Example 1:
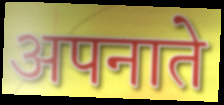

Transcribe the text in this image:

अपनाते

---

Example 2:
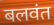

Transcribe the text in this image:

बलवंत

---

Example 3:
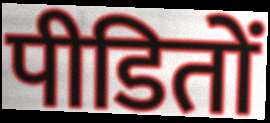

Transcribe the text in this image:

पीडितों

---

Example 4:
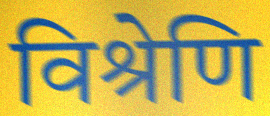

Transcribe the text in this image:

विश्रेणि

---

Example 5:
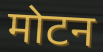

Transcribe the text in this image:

मोटन